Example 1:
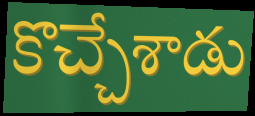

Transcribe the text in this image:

కొచ్చేశాడు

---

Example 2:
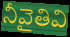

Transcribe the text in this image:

నీవైతివి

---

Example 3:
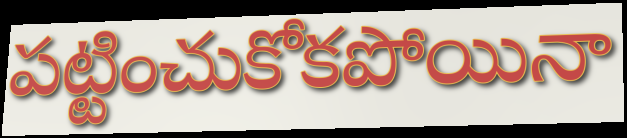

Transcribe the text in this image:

పట్టించుకోకపోయినా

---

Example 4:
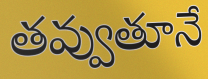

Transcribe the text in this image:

తవ్వుతూనే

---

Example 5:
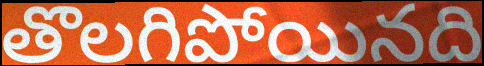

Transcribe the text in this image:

తొలగిపోయినది